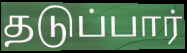
தடுப்பார்